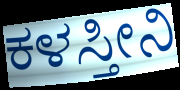
ಕಳಸ್ತೀನಿ